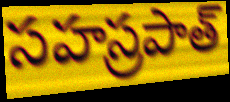
సహస్రపాత్